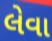
લેવા